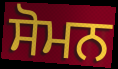
ਸੋਮਨ